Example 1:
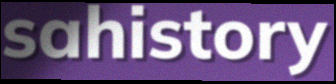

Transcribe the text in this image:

sahistory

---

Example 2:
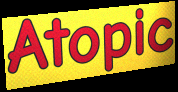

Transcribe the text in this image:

Atopic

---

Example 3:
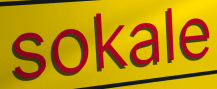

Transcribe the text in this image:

sokale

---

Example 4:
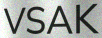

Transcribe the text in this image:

VSAK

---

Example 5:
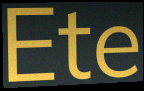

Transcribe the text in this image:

Ete